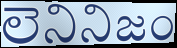
లెనినిజం